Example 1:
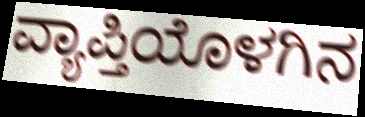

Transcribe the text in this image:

ವ್ಯಾಪ್ತಿಯೊಳಗಿನ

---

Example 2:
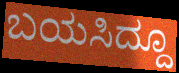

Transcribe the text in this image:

ಬಯಸಿದ್ದೂ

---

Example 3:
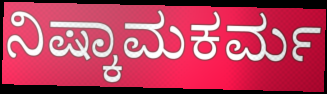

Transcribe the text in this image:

ನಿಷ್ಕಾಮಕರ್ಮ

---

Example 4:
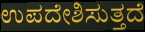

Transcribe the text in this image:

ಉಪದೇಶಿಸುತ್ತದೆ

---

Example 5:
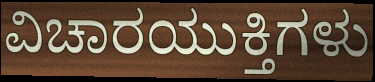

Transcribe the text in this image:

ವಿಚಾರಯುಕ್ತಿಗಳು